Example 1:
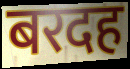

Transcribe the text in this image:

बरदह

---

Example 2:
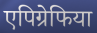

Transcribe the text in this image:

एपिग्रेफिया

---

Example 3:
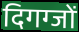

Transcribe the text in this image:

दिगग्जों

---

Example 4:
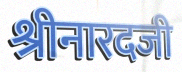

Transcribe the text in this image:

श्रीनारदजी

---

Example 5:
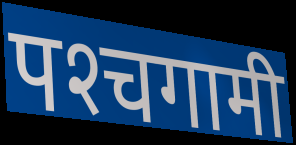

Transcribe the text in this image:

पश्चगामी